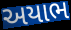
અયાભ